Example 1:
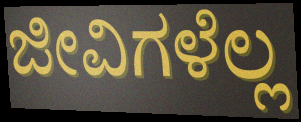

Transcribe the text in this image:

ಜೀವಿಗಳೆಲ್ಲ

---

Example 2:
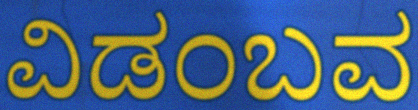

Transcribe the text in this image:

ವಿಡಂಬವ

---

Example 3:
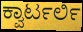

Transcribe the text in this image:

ಕ್ವಾರ್ಟರ್ಲಿ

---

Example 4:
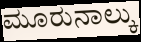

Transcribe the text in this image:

ಮೂರುನಾಲ್ಕು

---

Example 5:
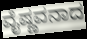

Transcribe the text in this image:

ವೈಷ್ಣವನಾದ